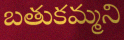
బతుకమ్మని